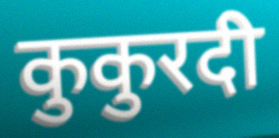
कुकुरदी